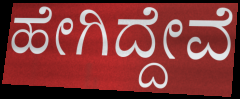
ಹೇಗಿದ್ದೇವೆ